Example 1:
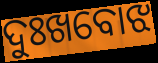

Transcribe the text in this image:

ଦୁଃଖବୋଝ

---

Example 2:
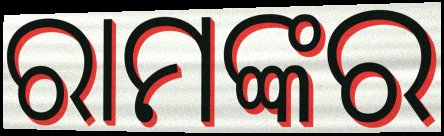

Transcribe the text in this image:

ରାମଙ୍କର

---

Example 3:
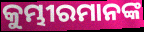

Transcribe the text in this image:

କୁମ୍ଭୀରମାନଙ୍କ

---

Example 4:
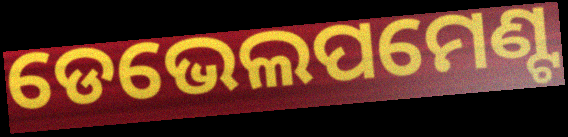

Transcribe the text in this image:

ଡେଭେଲପମେଣ୍ଟ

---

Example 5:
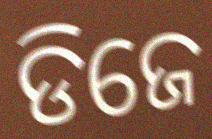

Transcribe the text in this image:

ଡିଜେ